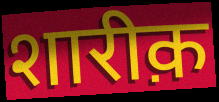
शारीक़